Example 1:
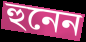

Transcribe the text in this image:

হুনেন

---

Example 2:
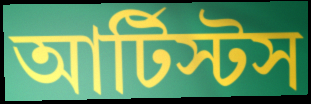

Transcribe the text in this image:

আর্টিস্টস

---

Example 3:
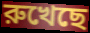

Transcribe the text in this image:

রুখেছে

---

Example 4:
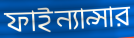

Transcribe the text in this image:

ফাইন্যান্সার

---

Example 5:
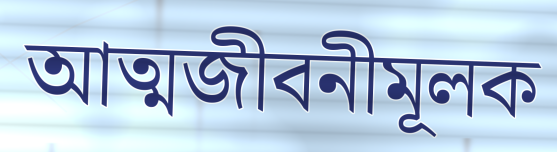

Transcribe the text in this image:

আত্মজীবনীমূলক